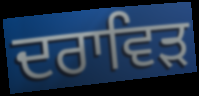
ਦਰਾਵਿੜ